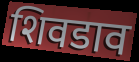
शिवडाव